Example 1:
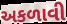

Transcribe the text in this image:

અકળાવી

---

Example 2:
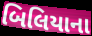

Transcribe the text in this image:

બિલિયાના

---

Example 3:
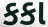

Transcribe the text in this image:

કકા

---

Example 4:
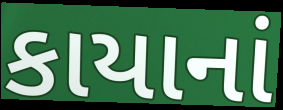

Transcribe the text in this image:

કાયાનાં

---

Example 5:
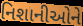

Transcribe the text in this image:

નિશાનીઓને